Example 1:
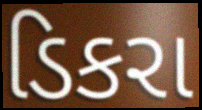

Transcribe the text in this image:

ડિકરા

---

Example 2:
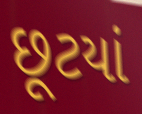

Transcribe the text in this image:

છૂટયાં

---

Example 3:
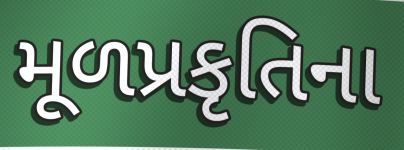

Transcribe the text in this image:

મૂળપ્રકૃતિના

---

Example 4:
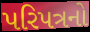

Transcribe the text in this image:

પરિપત્રનો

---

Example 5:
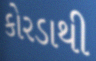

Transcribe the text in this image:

કોરડાથી